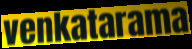
venkatarama